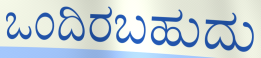
ಒಂದಿರಬಹುದು